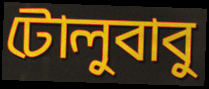
টোলুবাবু